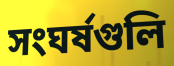
সংঘর্ষগুলি